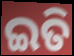
ଇତି